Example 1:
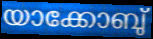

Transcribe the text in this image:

യാക്കോബു്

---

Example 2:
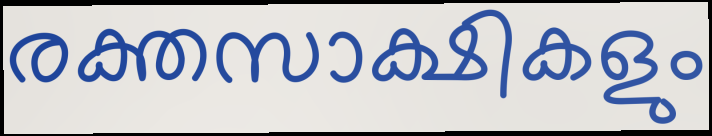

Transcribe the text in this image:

രക്തസാക്ഷികളും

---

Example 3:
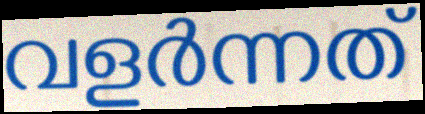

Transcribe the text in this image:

വളർന്നത്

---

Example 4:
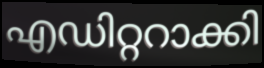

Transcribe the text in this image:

എഡിറ്ററാക്കി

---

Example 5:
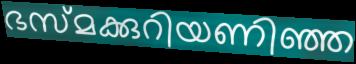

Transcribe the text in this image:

ഭസ്മക്കുറിയണിഞ്ഞ